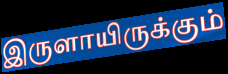
இருளாயிருக்கும்